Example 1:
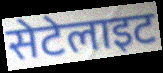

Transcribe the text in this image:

सेटेलाइट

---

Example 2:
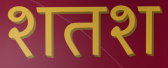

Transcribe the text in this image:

शतश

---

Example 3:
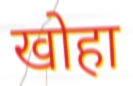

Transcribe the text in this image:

खोहा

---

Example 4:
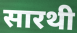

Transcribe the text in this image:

सारथी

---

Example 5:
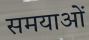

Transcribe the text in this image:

समयाओं